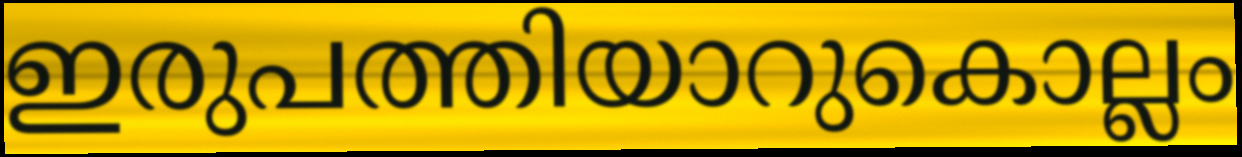
ഇരുപത്തിയാറുകൊല്ലം